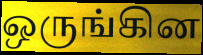
ஒருங்கின